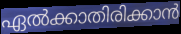
ഏൽക്കാതിരിക്കാൻ